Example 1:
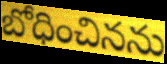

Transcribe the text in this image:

బోధించినను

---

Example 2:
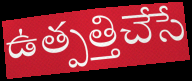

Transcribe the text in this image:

ఉత్పత్తిచేసే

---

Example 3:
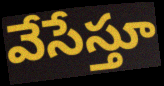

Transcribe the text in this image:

వేసేస్తూ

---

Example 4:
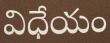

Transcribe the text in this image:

విధేయం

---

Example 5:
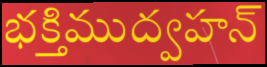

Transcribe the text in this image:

భక్తిముద్వహన్